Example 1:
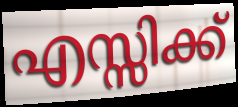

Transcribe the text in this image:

എസ്സിക്ക്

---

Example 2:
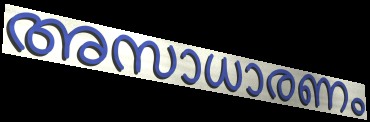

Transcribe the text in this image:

അസാധാരണം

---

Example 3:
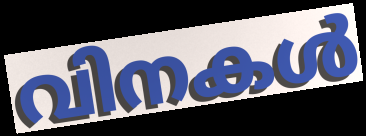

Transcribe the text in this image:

വിനകൾ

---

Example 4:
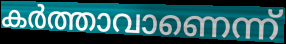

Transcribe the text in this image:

കർത്താവാണെന്ന്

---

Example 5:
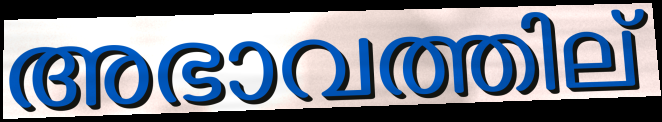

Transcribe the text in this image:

അഭാവത്തില്